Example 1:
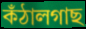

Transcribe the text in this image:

কঁঠালগাছ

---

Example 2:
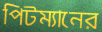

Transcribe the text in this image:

পিটম্যানের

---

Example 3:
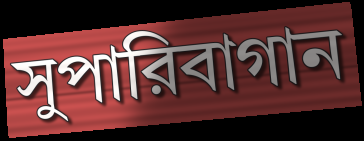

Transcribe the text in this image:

সুপারিবাগান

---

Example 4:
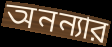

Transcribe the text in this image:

অনন্যার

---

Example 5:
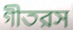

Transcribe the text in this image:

গীতরস